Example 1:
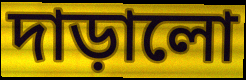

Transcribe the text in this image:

দাড়ালো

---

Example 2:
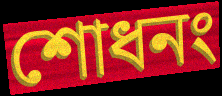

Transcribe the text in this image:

শোধনং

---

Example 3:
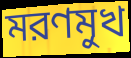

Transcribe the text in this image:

মরণমুখ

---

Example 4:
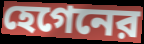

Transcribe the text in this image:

হেগেনের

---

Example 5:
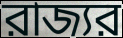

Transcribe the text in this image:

রাজ্যর